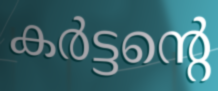
കർട്ടന്റെ